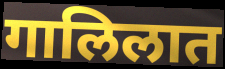
गालिलात